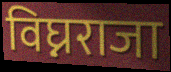
विघ्नराजा